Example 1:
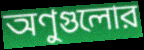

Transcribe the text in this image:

অণুগুলোর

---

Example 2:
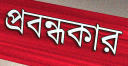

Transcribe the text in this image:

প্রবন্ধকার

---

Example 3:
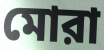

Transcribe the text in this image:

মোরা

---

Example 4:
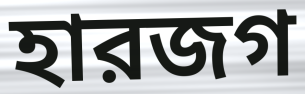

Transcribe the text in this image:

হারজগ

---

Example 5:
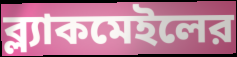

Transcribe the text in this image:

ব্ল্যাকমেইলের